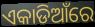
ଏକାଡିଆଁରେ